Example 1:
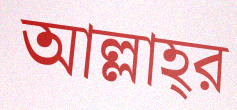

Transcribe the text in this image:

আল্লাহ্‌র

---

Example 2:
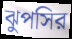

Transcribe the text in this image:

ঝুপসির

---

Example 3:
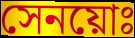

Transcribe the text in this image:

সেনয়োঃ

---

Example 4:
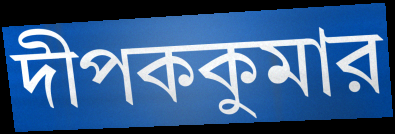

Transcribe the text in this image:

দীপককুমার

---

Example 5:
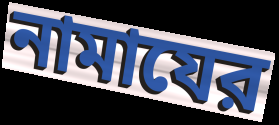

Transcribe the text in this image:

নামাযের